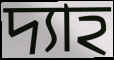
দ্যাহ